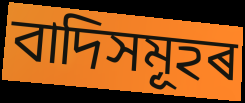
বাদিসমূহৰ